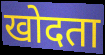
खोदता